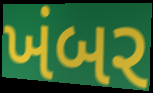
ખંબર